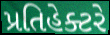
પ્રતિહેક્ટરે